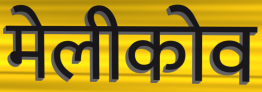
मेलीकोव